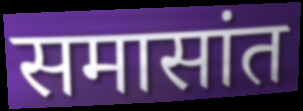
समासांत